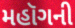
મહૉગની